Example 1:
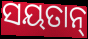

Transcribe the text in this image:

ସୟତାନ୍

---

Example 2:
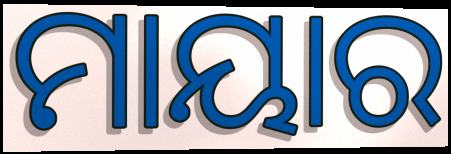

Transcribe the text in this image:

ମାୟାର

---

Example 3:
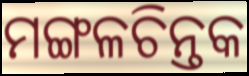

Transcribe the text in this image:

ମଙ୍ଗଳଚିନ୍ତକ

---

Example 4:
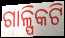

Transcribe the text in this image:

ଗାଳ୍ପିକଟି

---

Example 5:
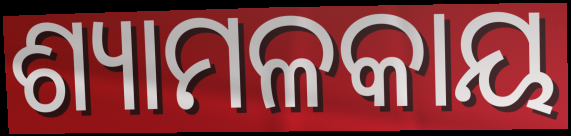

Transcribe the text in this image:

ଶ୍ୟାମଳକାୟ